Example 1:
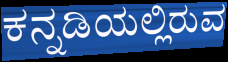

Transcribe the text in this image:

ಕನ್ನಡಿಯಲ್ಲಿರುವ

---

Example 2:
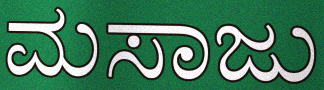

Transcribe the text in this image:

ಮಸಾಜು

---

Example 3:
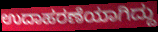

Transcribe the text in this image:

ಉದಾಹರಣೆಯಾಗಿದ್ದು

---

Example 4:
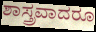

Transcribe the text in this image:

ಶಾಸ್ತ್ರವಾದರೂ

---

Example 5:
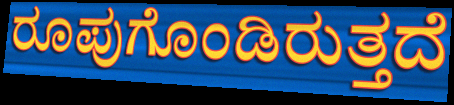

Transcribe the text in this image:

ರೂಪುಗೊಂಡಿರುತ್ತದೆ